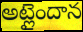
అట్లైందాన